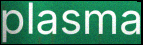
plasma